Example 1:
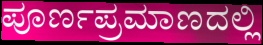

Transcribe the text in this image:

ಪೂರ್ಣಪ್ರಮಾಣದಲ್ಲಿ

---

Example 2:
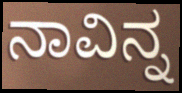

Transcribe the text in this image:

ನಾವಿನ್ನ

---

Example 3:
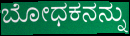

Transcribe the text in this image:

ಬೋಧಕನನ್ನು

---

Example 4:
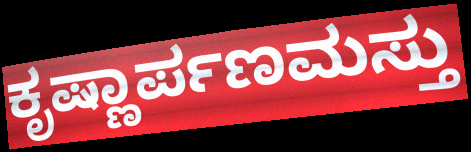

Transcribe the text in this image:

ಕೃಷ್ಣಾರ್ಪಣಮಸ್ತು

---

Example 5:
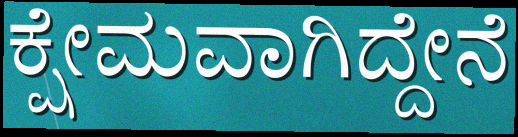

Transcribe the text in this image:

ಕ್ಷೇಮವಾಗಿದ್ದೇನೆ